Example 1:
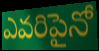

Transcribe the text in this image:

ఎవరిపైనో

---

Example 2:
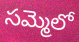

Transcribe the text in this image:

సమ్మెలో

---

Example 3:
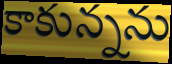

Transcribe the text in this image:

కాకున్నను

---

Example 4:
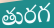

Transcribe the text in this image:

తురగ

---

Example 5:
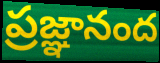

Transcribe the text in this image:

ప్రజ్ఞానంద